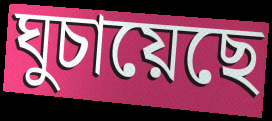
ঘুচায়েছে